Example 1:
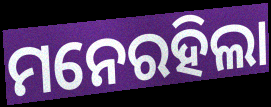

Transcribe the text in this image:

ମନେରହିଲା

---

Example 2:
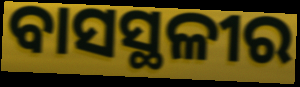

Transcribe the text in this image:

ବାସସ୍ଥଳୀର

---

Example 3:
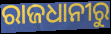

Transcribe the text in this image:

ରାଜଧାନୀରୁ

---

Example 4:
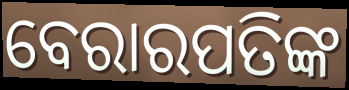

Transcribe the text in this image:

ବେରାରପତିଙ୍କ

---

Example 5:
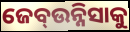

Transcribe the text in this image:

ଜେବ୍ଉନ୍ନିସାକୁ